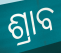
ଶ୍ରାବ